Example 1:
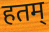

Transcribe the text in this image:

हतम्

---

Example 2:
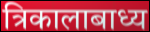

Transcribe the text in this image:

त्रिकालाबाध्य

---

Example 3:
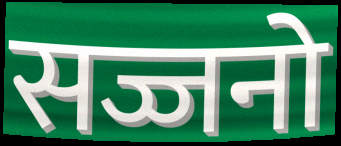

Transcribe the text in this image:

सज्जनो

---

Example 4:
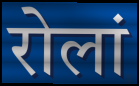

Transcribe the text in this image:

रोलां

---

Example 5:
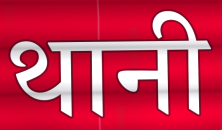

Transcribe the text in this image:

थानी